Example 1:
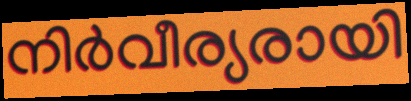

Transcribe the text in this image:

നിർവീര്യരായി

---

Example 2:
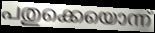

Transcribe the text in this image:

പതുക്കെയൊന്ന്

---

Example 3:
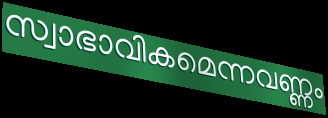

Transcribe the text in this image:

സ്വാഭാവികമെന്നവണ്ണം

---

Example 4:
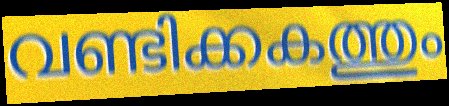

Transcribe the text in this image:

വണ്ടിക്കകത്തും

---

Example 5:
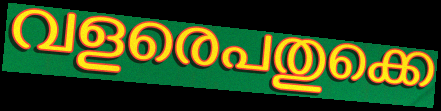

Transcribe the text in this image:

വളരെപതുക്കെ